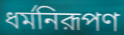
ধর্মনিরূপণ